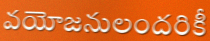
వయోజనులందరికీ